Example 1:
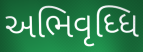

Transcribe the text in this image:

અભિવૃધ્ધિ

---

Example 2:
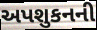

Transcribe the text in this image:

અપશુકનની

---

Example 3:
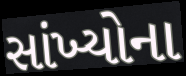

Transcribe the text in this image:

સાંખ્યોના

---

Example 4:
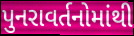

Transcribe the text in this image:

પુનરાવર્તનોમાંથી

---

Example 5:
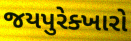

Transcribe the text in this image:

જયપુરેક્ખારો